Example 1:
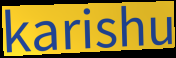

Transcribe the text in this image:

karishu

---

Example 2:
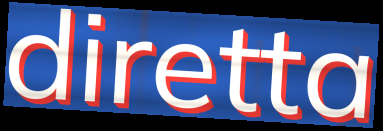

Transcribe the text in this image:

diretta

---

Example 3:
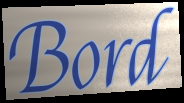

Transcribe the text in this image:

Bord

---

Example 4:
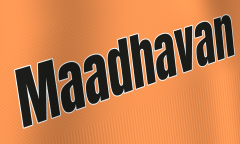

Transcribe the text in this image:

Maadhavan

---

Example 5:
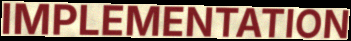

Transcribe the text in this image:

IMPLEMENTATION